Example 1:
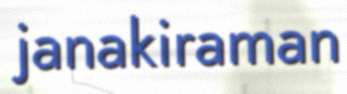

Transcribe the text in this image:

janakiraman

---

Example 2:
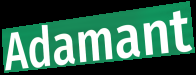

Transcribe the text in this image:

Adamant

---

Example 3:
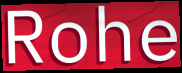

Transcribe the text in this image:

Rohe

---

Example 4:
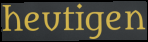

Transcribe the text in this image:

heutigen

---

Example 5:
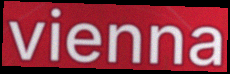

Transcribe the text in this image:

vienna